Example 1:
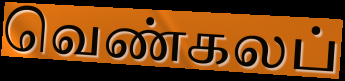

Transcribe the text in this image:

வெண்கலப்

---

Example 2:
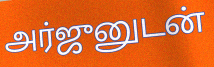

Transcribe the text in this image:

அர்ஜுனுடன்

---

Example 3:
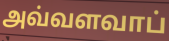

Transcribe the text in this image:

அவ்வளவாப்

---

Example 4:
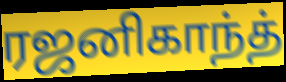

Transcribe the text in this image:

ரஜனிகாந்த்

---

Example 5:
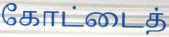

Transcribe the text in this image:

கோட்டைத்